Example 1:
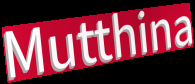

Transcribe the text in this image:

Mutthina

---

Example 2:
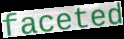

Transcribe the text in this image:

faceted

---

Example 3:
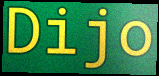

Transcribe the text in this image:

Dijo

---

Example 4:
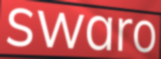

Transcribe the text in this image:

swaro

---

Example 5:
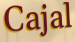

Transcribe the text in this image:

Cajal